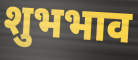
शुभभाव